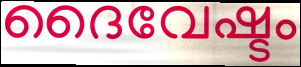
ദൈവേഷ്ടം